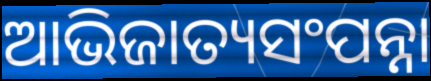
ଆଭିଜାତ୍ୟସଂପନ୍ନା